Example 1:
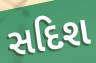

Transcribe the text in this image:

સદિશ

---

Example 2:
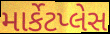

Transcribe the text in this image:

માર્કેટપ્લેસ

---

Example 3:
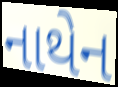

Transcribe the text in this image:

નાથેન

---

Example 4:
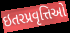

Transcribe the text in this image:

ઇતરપ્રવૃત્તિઓ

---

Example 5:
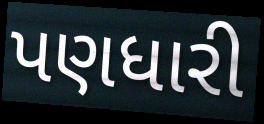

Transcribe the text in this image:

પણધારી